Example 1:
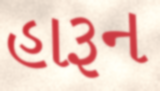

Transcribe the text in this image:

હારૂન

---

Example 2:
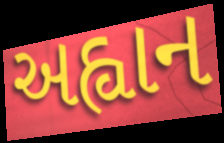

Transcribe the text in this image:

અહ્વાન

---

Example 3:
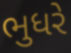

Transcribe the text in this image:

ભુધરે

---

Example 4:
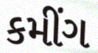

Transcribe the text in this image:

કમીંગ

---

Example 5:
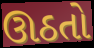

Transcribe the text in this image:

ઊઠતો